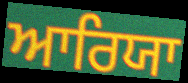
ਆਰਿਯਾ